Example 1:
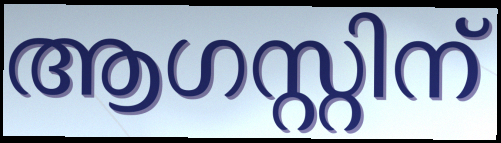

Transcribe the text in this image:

ആഗസ്റ്റിന്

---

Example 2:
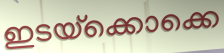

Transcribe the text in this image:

ഇടയ്‌ക്കൊക്കെ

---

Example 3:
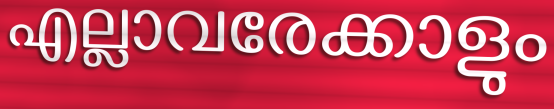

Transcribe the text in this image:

എല്ലാവരേക്കാളും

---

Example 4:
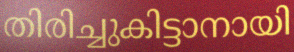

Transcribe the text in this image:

തിരിച്ചുകിട്ടാനായി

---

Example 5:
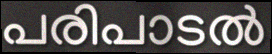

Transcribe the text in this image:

പരിപാടൽ